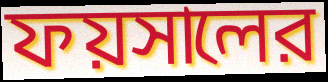
ফয়সালের